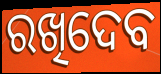
ରଖିଦେବ